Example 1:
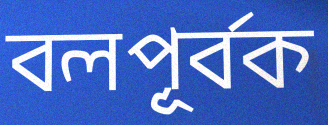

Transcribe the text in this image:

বলপূর্বক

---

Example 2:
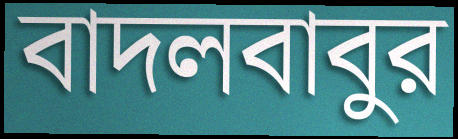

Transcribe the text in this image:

বাদলবাবুর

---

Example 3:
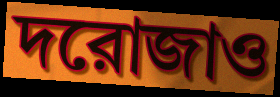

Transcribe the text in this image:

দরোজাও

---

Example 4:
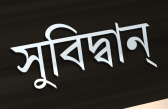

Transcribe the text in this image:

সুবিদ্বান্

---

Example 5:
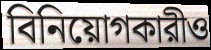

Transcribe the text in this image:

বিনিয়োগকারীও